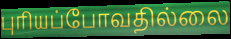
புரியப்போவதில்லை